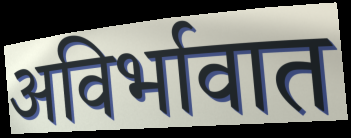
अविर्भावात